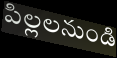
పిల్లలనుండి